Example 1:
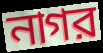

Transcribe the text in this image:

নাগর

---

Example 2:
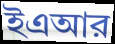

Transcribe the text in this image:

ইএআর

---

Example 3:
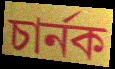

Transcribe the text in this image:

চার্নক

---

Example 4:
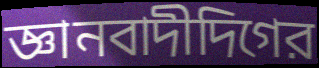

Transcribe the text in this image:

জ্ঞানবাদীদিগের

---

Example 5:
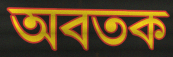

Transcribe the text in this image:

অবতক